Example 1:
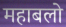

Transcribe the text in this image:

महाबलो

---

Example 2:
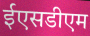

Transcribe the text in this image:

ईएसडीएम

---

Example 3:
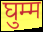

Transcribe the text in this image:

घुम्म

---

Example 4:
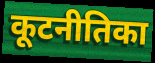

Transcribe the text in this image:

कूटनीतिका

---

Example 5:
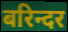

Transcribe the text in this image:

बरिन्दर